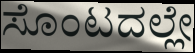
ಸೊಂಟದಲ್ಲೇ